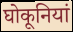
घोकूनियां